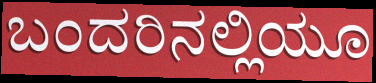
ಬಂದರಿನಲ್ಲಿಯೂ